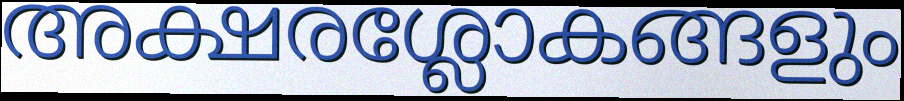
അക്ഷരശ്ലോകങ്ങളും